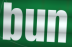
bun